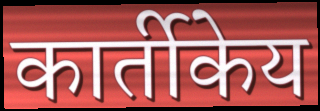
कार्तीकेय